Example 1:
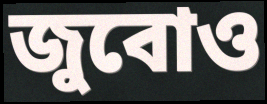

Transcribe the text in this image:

জুবোও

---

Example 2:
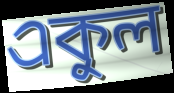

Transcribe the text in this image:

একুল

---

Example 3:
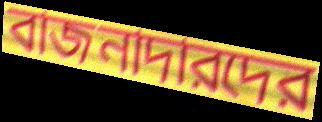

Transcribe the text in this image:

বাজনাদারদের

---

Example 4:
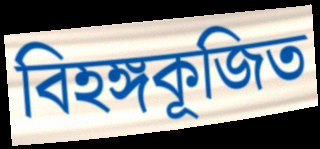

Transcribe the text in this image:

বিহঙ্গকূজিত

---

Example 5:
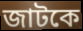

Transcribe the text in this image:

জাটকে